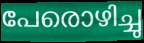
പേരൊഴിച്ചു